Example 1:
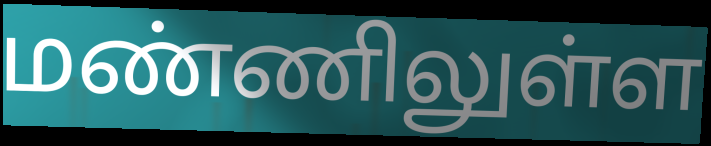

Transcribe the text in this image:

மண்ணிலுள்ள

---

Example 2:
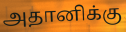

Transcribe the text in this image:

அதானிக்கு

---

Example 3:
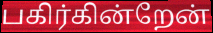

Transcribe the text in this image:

பகிர்கின்றேன்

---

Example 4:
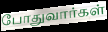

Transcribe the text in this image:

போதுவார்கள்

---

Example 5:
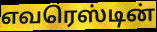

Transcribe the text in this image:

எவரெஸ்டின்